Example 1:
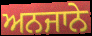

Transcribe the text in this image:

ਅਨਜਾਨੇ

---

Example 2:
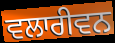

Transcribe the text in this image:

ਵਲਾਰੀਵਨ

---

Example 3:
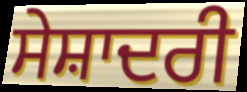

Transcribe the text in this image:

ਸੇਸ਼ਾਦਰੀ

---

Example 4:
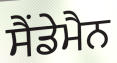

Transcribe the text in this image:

ਸੈਂਡੇਮੈਨ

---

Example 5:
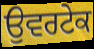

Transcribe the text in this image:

ਉਵਰਟੇਕ